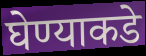
घेण्याकडे